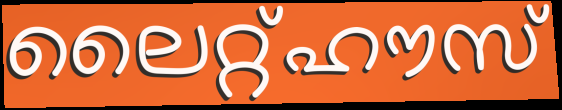
ലൈറ്റ്ഹൗസ്